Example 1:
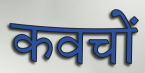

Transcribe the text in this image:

कवचों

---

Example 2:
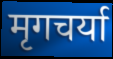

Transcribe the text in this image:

मृगचर्या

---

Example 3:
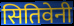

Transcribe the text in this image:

सितिवेनी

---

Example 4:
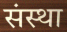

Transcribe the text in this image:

संस्‍था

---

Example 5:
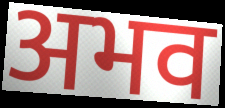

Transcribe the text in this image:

अभव